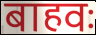
बाहवः